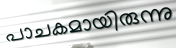
പാചകമായിരുന്നു